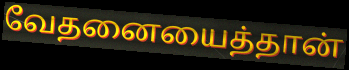
வேதனையைத்தான்